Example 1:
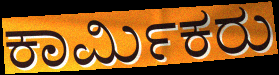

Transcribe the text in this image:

ಕಾರ್ಮಿಕರು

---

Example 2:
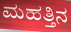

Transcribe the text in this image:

ಮಹತ್ತಿನ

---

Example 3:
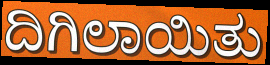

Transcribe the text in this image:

ದಿಗಿಲಾಯಿತು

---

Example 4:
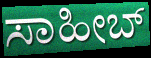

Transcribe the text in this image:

ಸಾಹೀಬ್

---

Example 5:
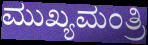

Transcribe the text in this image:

ಮುಖ್ಯಮಂತ್ರಿ